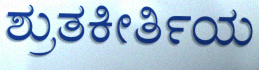
ಶ್ರುತಕೀರ್ತಿಯ